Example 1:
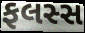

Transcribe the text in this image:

ફલસ્સ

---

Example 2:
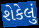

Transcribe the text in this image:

શેકેલું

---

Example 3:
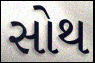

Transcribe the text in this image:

સોથ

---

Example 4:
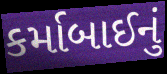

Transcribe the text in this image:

કર્માબાઈનું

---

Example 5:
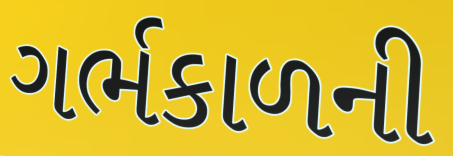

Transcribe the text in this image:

ગર્ભકાળની